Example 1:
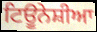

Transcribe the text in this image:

ਟਿਊਨੇਸ਼ੀਆ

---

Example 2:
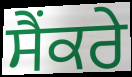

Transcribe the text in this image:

ਸੈਂਕਰੇ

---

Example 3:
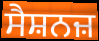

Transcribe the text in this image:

ਸੈਸ਼ਨਜ਼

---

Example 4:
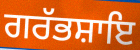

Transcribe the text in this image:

ਗਰੱਭਸ਼ਾਇ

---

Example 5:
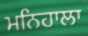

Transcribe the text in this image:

ਮਨਿਹਾਲਾ